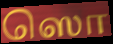
ஸொ